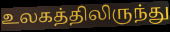
உலகத்திலிருந்து